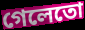
গেলেতো